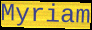
Myriam